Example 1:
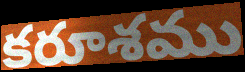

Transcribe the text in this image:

కరూశము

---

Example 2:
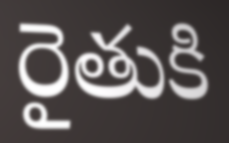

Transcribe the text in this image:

రైతుకి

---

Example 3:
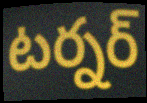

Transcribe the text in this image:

టర్నర్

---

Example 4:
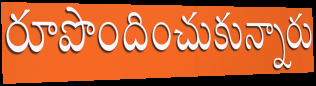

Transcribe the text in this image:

రూపొందించుకున్నారు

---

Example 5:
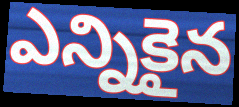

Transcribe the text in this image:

ఎన్నికైన